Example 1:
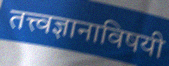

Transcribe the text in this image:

तत्त्वज्ञानाविषयी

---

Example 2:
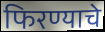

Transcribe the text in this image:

फिरण्याचे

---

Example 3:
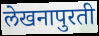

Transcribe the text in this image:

लेखनापुरती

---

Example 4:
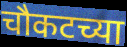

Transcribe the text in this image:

चौकटच्या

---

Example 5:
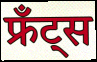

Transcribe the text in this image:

फ्रँट्स